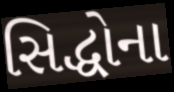
સિદ્ધોના